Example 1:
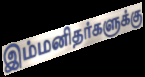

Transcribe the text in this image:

இம்மனிதர்களுக்கு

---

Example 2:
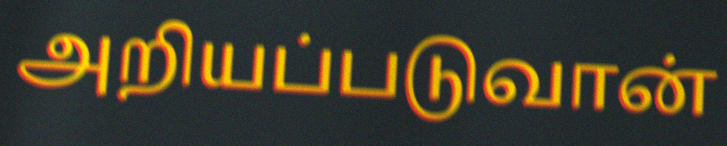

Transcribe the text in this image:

அறியப்படுவான்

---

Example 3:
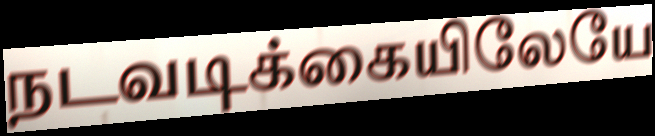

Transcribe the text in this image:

நடவடிக்கையிலேயே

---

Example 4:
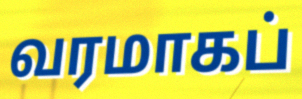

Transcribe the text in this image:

வரமாகப்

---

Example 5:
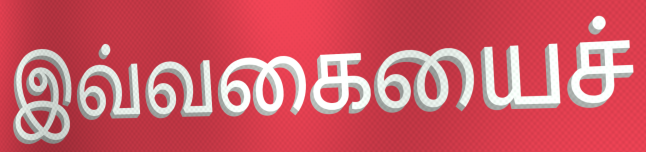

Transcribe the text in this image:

இவ்வகையைச்